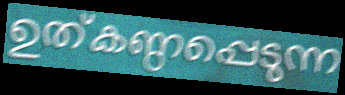
ഉത്കണ്ഠപ്പെടുന്ന